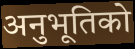
अनुभूतिको